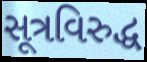
સૂત્રવિરુદ્ધ